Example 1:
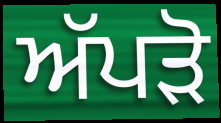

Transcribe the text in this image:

ਅੱਪੜੋ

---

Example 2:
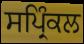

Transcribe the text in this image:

ਸਪ੍ਰਿੰਕਲ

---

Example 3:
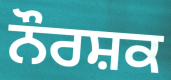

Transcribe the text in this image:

ਨੌਰਸ਼ਕ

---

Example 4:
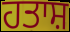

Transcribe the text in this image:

ਹਤਾਸ਼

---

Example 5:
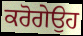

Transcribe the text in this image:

ਕਰੋਗੇਉਹ